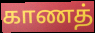
காணத்